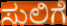
ಸುಲಿಗೆ